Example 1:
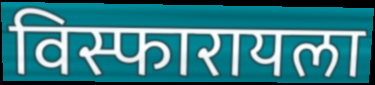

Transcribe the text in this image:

विस्फारायला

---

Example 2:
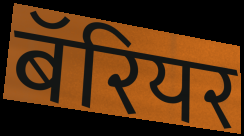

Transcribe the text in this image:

बॅरियर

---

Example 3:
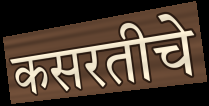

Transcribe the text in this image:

कसरतीचे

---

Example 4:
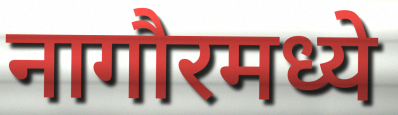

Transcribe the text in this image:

नागौरमध्ये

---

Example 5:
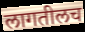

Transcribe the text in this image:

लागतीलच